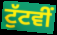
ਟੁੱਟਵੀਂ